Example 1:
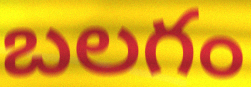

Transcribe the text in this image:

బలగం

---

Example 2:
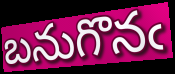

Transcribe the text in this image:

బనుగొనఁ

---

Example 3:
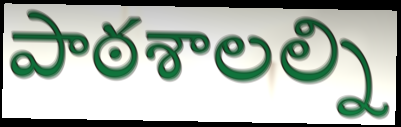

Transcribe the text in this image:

పాఠశాలల్ని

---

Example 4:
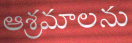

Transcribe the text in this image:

ఆశ్రమాలను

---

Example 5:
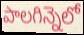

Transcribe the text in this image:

పాలగిన్నెలో